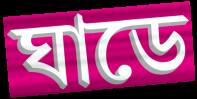
ঘাডে